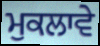
ਮੁਕਲਾਵੇ